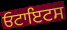
ਓਟਾਇਟਸ